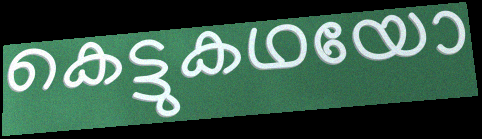
കെട്ടുകഥയോ